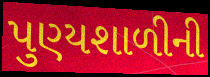
પુણ્યશાળીની